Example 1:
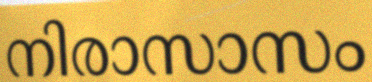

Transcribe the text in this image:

നിരാസാസം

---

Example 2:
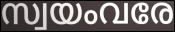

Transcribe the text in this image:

സ്വയംവരേ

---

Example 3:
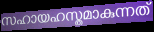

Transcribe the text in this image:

സഹായഹസ്തമാകുന്നത്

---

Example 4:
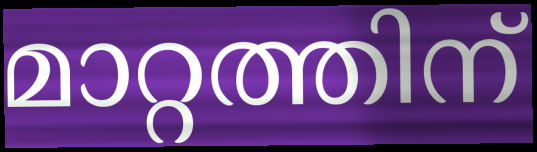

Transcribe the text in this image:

മാറ്റത്തിന്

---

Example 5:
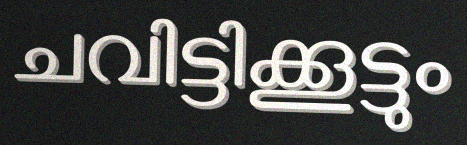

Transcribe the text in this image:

ചവിട്ടിക്കൂട്ടും